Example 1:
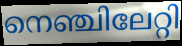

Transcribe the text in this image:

നെഞ്ചിലേറ്റി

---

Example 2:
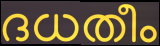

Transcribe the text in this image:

ദധതീം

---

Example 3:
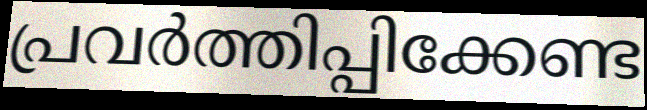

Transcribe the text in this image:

പ്രവർത്തിപ്പിക്കേണ്ട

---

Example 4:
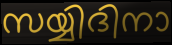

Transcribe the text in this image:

സയ്യിദിനാ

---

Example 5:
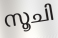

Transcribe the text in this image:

സൂചി